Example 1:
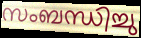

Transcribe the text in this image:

സംബന്ധിച്ചു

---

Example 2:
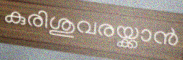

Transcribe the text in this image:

കുരിശുവരയ്ക്കാൻ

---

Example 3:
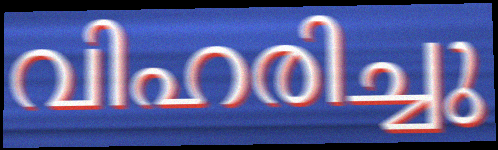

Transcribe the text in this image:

വിഹരിച്ചു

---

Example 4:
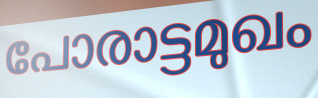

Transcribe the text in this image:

പോരാട്ടമുഖം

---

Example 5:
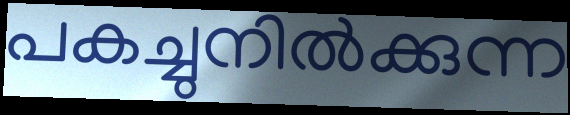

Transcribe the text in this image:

പകച്ചുനിൽക്കുന്ന